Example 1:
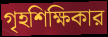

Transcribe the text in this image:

গৃহশিক্ষিকার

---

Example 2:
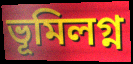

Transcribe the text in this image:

ভূমিলগ্ন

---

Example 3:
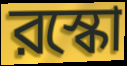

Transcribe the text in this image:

রস্কো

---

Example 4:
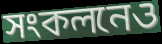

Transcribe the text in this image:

সংকলনেও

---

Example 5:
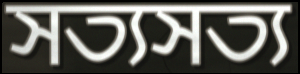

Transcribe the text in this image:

সত্যসত্য